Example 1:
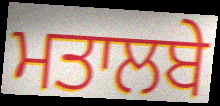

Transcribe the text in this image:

ਮਤਾਲਬੇ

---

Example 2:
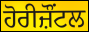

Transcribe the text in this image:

ਹੋਰੀਜ਼ੌਂਟਲ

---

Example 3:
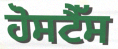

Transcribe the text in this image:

ਹੋਸਟੈੱਸ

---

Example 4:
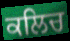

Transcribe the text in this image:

ਕਲਿਚ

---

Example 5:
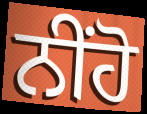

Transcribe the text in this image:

ਨੀਂਹੋ